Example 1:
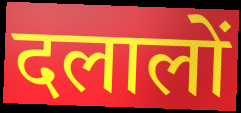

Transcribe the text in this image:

दलालों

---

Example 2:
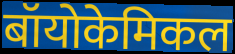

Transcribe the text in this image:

बॉयोकेमिकल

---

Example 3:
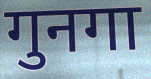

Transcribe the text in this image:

गुनगा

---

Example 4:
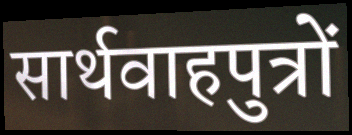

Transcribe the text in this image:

सार्थवाहपुत्रों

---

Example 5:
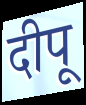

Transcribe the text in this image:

दीपू